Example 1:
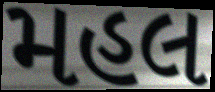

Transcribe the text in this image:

મહલ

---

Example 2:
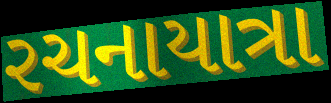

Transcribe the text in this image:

રચનાયાત્રા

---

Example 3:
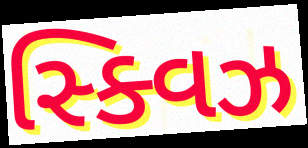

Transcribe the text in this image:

સ્ક્વિઝ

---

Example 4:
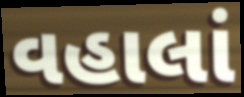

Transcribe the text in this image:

વહાલાં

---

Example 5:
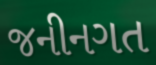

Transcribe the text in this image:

જનીનગત